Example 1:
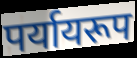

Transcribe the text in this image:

पर्यायरूप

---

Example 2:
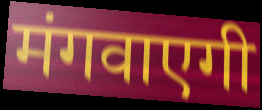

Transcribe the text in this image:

मंगवाएगी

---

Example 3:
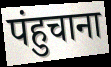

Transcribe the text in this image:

पंहुचाना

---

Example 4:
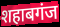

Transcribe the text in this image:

शहाबगंज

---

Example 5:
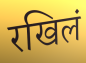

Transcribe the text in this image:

रखिलं